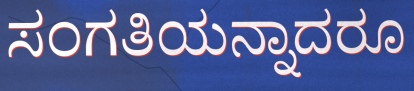
ಸಂಗತಿಯನ್ನಾದರೂ